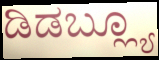
ಡಿಡಬ್ಲ್ಯೂ